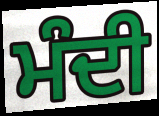
ਮੰਦੀ